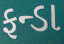
ફન્ડા